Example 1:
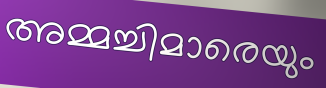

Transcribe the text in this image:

അമ്മച്ചിമാരെയും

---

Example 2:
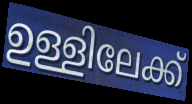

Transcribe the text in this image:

ഉള്ളിലേക്ക്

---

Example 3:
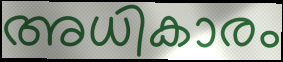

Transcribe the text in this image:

അധികാരം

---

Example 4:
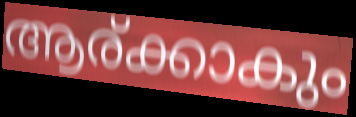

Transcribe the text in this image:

ആര്ക്കാകും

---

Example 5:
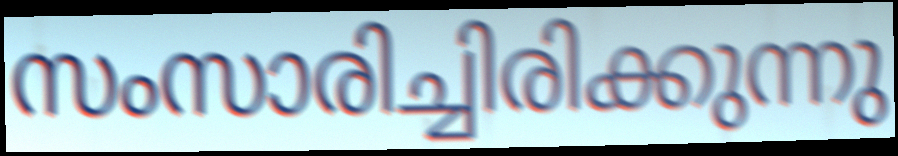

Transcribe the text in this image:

സംസാരിച്ചിരിക്കുന്നു